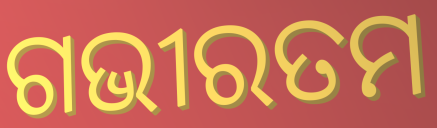
ଗଭୀରତମ